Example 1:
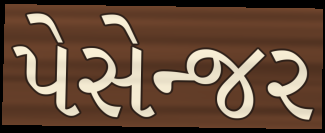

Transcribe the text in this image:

પેસેન્જર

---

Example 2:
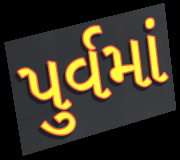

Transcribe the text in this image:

પુર્વમાં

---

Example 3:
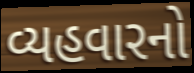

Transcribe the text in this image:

વ્યહવારનો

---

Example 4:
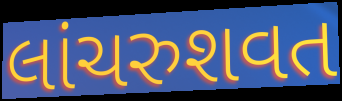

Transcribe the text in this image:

લાંચરુશવત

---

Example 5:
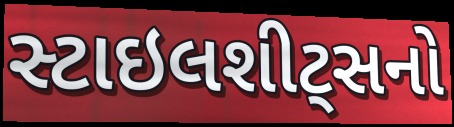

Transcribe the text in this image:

સ્ટાઇલશીટ્સનો